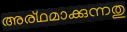
അര്ഥമാക്കുന്നതു